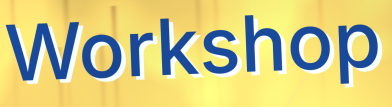
Workshop